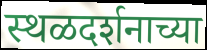
स्थळदर्शनाच्या